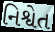
નિશ્વેત